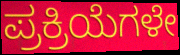
ಪ್ರಕ್ರಿಯೆಗಳೇ